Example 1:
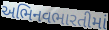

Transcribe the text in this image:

અભિનવભારતીમાં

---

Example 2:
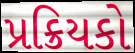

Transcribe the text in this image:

પ્રક્રિયકો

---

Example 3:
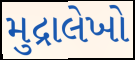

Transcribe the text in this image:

મુદ્રાલેખો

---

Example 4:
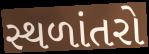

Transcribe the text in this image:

સ્થળાંતરો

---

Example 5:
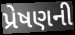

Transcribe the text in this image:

પ્રેષણની